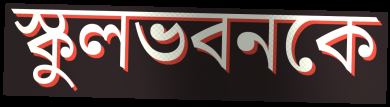
স্কুলভবনকে